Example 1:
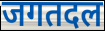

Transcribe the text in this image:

जगतदल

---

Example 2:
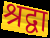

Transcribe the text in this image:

श्रद्वा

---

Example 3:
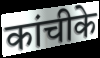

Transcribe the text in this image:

कांचीके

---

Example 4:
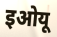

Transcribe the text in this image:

इओयू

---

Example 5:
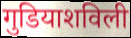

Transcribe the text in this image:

गुडियाशविली